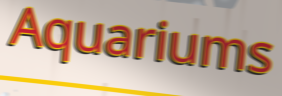
Aquariums